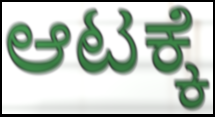
ಆಟಕ್ಕೆ